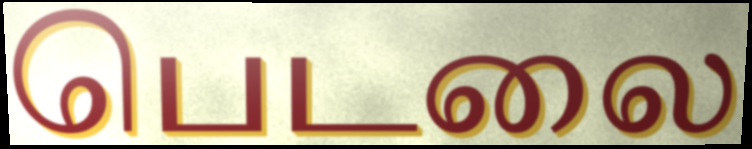
பெடலை